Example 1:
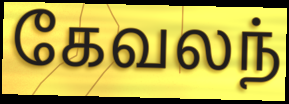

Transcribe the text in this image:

கேவலந்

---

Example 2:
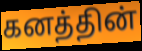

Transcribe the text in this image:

கனத்தின்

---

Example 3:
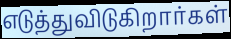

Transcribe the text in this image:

எடுத்துவிடுகிறார்கள்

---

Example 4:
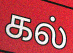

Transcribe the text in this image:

கல்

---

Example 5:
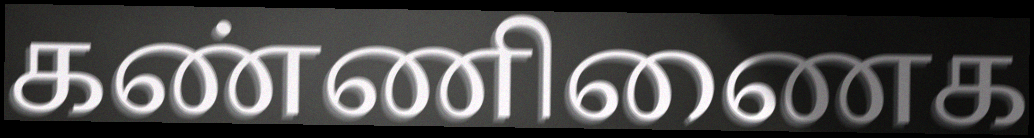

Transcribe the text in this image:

கண்ணிணைக